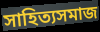
সাহিত্যসমাজ